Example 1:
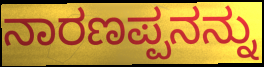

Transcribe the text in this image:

ನಾರಣಪ್ಪನನ್ನು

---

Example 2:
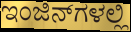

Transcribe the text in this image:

ಇಂಜಿನ್‌ಗಳಲ್ಲಿ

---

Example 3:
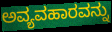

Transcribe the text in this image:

ಅವ್ಯವಹಾರವನ್ನು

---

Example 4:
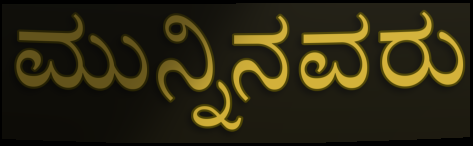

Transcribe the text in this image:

ಮುನ್ನಿನವರು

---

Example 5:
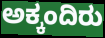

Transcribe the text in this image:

ಅಕ್ಕಂದಿರು